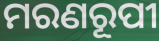
ମରଣରୂପୀ